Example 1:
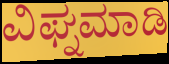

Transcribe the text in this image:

ವಿಘ್ನಮಾಡಿ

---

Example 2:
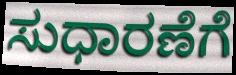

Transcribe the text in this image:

ಸುಧಾರಣೆಗೆ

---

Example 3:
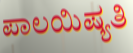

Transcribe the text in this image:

ಪಾಲಯಿಷ್ಯತಿ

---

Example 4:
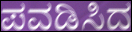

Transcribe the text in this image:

ಪವಡಿಸಿದ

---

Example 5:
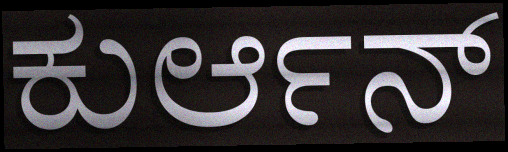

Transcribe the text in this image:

ಕುರ್ಆನ್